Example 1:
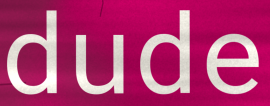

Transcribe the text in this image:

dude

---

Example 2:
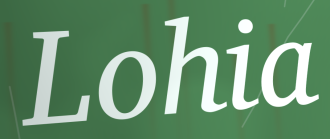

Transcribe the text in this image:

Lohia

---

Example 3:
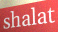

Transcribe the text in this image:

shalat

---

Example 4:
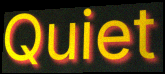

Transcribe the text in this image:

Quiet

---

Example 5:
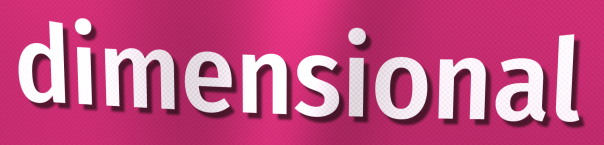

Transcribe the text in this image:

dimensional